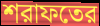
শরাফতের